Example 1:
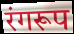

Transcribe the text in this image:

रंगरूप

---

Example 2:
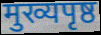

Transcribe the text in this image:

मुख्यपृष्ठ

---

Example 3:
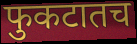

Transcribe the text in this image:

फुकटातच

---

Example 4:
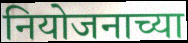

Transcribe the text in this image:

नियोजनाच्या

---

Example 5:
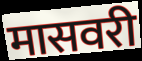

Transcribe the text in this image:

मासवरी